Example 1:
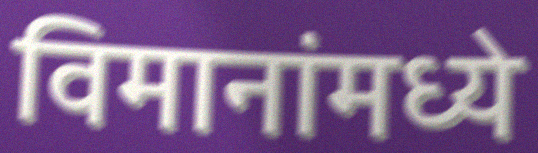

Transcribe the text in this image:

विमानांमध्ये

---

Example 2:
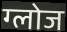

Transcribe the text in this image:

ग्लोज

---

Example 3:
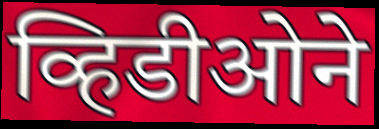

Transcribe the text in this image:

व्हिडीओने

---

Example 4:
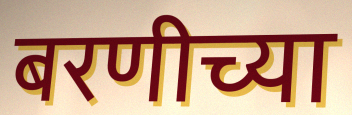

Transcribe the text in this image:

बरणीच्या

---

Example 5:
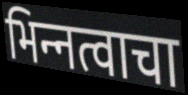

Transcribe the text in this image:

भिन्नत्वाचा